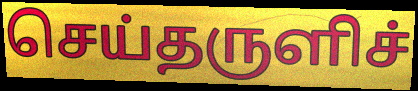
செய்தருளிச்